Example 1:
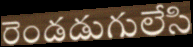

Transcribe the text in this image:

రెండడుగులేసి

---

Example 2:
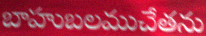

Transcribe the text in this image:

బాహుబలముచేతను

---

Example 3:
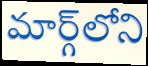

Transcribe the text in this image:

మార్గ్‌లోని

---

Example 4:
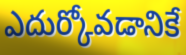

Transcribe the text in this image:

ఎదుర్కోవడానికే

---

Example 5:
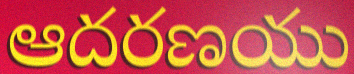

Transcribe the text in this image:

ఆదరణయు